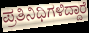
ಪ್ರತಿನಿಧಿಗಳಿದ್ದಾರೆ